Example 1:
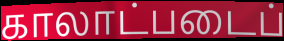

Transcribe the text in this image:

காலாட்படைப்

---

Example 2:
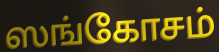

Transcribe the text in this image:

ஸங்கோசம்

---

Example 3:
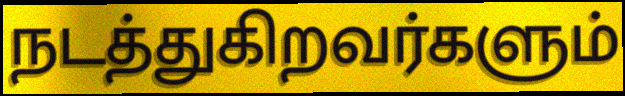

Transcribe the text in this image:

நடத்துகிறவர்களும்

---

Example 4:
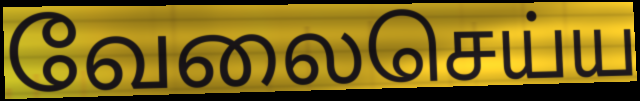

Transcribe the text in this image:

வேலைசெய்ய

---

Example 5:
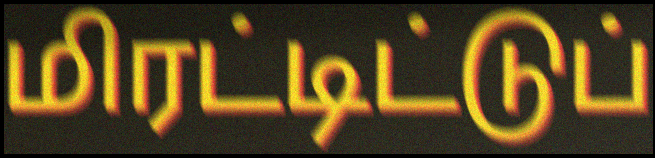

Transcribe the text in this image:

மிரட்டிட்டுப்